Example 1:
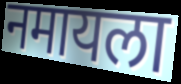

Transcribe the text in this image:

नमायला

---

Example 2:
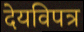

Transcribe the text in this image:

देयविपत्र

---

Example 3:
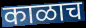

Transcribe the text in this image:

काळाच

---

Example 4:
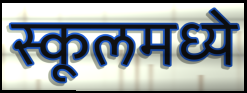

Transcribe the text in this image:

स्कूलमध्ये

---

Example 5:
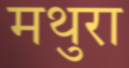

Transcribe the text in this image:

मथुरा